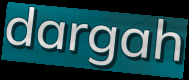
dargah